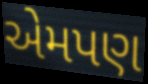
એમપણ